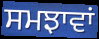
ਸਮਝਾਵਾਂ